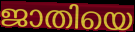
ജാതിയെ